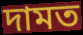
দামত